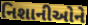
નિશાનીઓને